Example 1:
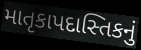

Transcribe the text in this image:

માતૃકાપદાસ્તિકનું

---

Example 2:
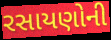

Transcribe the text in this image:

રસાયણોની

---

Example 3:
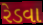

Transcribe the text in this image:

રેડવા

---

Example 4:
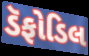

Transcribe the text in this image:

ડૅફોડિલ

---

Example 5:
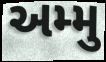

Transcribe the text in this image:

અમ્મુ